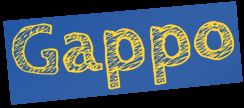
Gappo